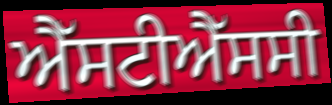
ਐੱਸਟੀਐੱਸਸੀ